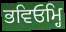
ਭਵਿਓਮ੍ਹਿ